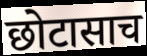
छोटासाच